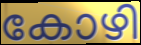
കോഴി